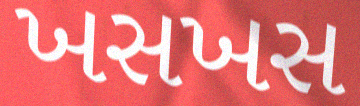
ખસખસ